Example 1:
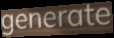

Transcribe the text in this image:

generate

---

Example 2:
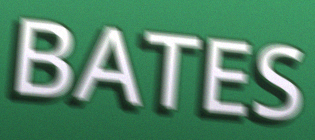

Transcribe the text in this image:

BATES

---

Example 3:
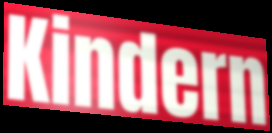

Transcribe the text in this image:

Kindern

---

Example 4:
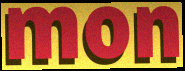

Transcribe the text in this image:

mon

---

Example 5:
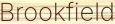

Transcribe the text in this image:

Brookfield